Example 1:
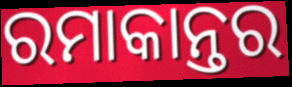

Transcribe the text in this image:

ରମାକାନ୍ତର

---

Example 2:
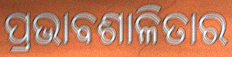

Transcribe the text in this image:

ପ୍ରଭାବଶାଳିତାର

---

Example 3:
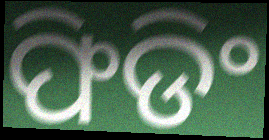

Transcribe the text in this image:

ଫିଡିଂ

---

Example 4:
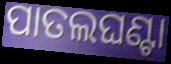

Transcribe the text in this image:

ପାତଲଘଣ୍ଟା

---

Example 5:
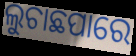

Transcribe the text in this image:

ଲୁଚାଛପାରେ